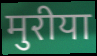
मुरीया